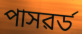
পাসৱৰ্ড